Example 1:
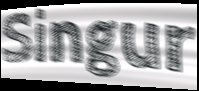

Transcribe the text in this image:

Singur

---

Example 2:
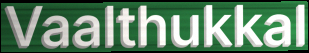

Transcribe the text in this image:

Vaalthukkal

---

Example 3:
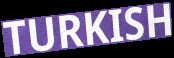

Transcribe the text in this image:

TURKISH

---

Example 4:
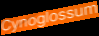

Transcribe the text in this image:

Cynoglossum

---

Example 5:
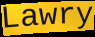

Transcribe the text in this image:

Lawry